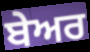
ਬੇਅਰ